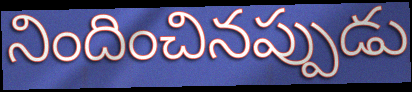
నిందించినప్పుడు